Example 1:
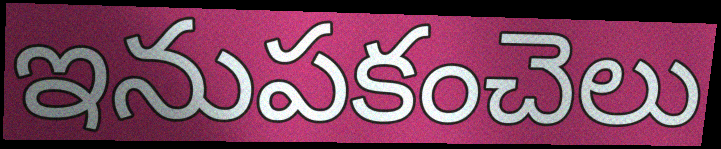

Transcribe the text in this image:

ఇనుపకంచెలు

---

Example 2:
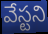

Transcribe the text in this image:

వేస్టని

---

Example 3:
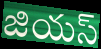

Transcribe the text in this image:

జియస్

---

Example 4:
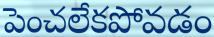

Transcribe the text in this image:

పెంచలేకపోవడం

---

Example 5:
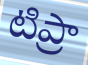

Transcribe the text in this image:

టిప్రా